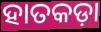
ହାତକଡ଼ା